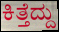
ಕಿತ್ತೆದ್ದು